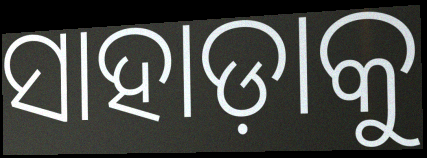
ସାହାଡ଼ାକୁ